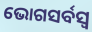
ଭୋଗସର୍ବସ୍ୱ